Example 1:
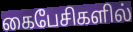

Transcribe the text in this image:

கைபேசிகளில்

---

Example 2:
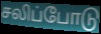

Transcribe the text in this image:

சலிப்போடு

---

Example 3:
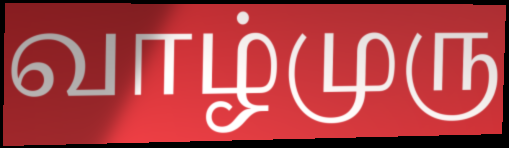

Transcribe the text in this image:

வாழ்முரு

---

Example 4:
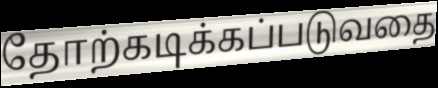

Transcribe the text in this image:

தோற்கடிக்கப்படுவதை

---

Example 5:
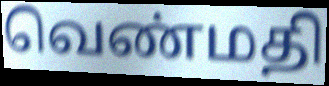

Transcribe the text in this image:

வெண்மதி